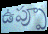
ఉప్పూ